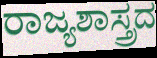
ರಾಜ್ಯಶಾಸ್ತ್ರದ